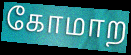
கோமாற